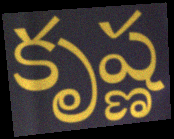
కృష్ణ